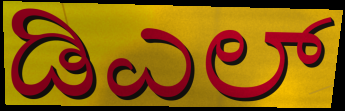
ಡಿಎಲ್